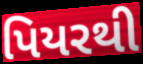
પિયરથી